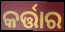
କର୍ତ୍ତାର